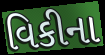
વિકીના